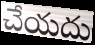
చేయదు